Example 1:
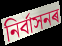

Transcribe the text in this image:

নিৰ্বাসনৰ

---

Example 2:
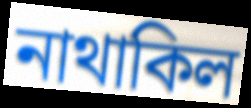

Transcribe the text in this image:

নাথাকিল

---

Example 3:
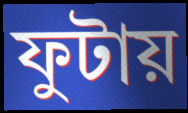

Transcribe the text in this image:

ফুটায়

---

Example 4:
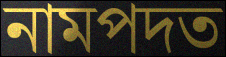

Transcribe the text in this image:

নামপদত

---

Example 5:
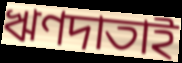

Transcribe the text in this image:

ঋণদাতাই